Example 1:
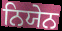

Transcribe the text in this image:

ਨਿਯੇਨ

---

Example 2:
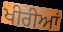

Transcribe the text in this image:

ਖੀਰੀਆਂ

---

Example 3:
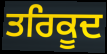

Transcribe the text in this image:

ਤਰਿਕੂਦ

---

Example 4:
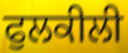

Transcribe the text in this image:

ਫੁਲਕੀਲੀ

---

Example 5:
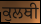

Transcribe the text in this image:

ਕੁਲਥੀ